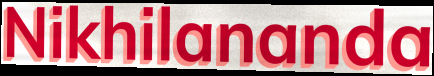
Nikhilananda